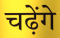
चढ़ेंगे